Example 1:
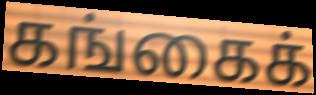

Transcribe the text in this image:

கங்கைக்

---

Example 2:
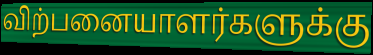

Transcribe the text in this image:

விற்பனையாளர்களுக்கு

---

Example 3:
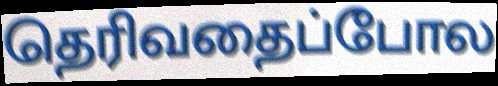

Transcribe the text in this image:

தெரிவதைப்போல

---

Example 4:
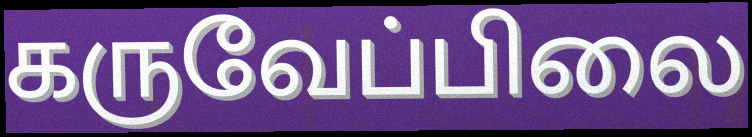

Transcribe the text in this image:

கருவேப்பிலை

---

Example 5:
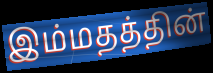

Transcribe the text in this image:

இம்மதத்தின்